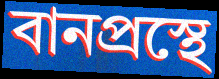
বানপ্রস্থে